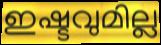
ഇഷ്ടവുമില്ല